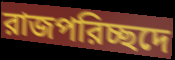
রাজপরিচ্ছদে